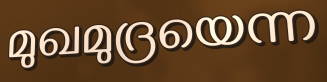
മുഖമുദ്രയെന്ന